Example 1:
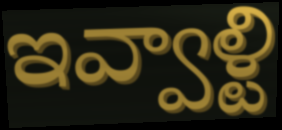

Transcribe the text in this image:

ఇవ్వాళ్టి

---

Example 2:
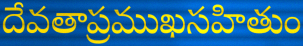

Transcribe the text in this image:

దేవతాప్రముఖసహితుం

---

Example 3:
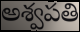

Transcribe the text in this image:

అశ్వపతి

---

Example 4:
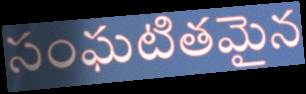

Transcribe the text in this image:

సంఘటితమైన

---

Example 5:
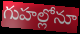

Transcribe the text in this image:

గుహల్లోనూ